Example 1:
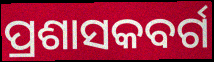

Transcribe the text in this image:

ପ୍ରଶାସକବର୍ଗ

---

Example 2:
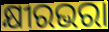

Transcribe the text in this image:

କ୍ଷୀରଭରା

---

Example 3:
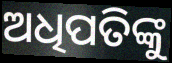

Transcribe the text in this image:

ଅଧିପତିଙ୍କୁ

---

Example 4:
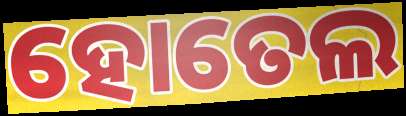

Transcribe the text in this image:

ହୋତେଲ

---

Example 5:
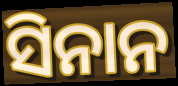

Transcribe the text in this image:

ସିନାନ